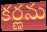
కర్ణను